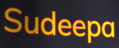
Sudeepa